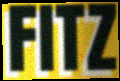
FITZ